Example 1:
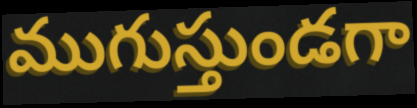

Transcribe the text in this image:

ముగుస్తుండగా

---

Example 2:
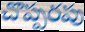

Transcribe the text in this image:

చొప్పరపు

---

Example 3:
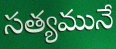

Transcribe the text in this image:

సత్యమునే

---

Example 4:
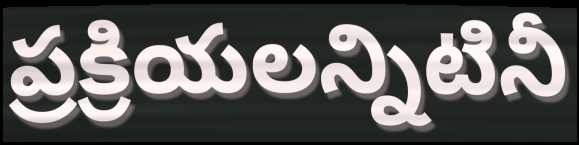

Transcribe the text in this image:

ప్రక్రియలన్నిటినీ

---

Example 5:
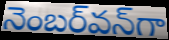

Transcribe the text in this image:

నెంబర్‌వన్‌గా